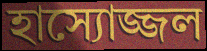
হাস্যোজ্জল